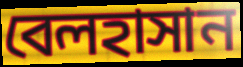
বেলহাসান